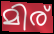
മിര്